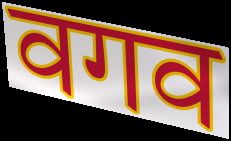
वगव